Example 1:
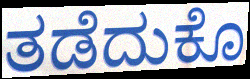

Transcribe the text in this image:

ತಡೆದುಕೊ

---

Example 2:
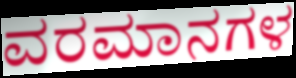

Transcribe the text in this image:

ವರಮಾನಗಳ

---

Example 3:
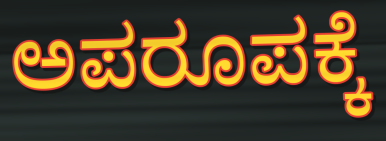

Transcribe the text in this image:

ಅಪರೂಪಕ್ಕೆ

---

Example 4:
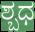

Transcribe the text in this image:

ಶ್ಬಧ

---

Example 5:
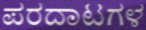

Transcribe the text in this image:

ಪರದಾಟಗಳ